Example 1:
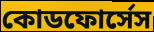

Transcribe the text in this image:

কোডফোর্সেস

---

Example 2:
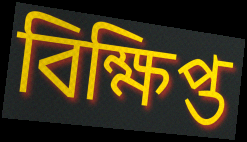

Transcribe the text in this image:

বিক্ষিপ্ত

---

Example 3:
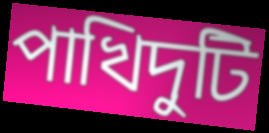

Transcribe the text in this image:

পাখিদুটি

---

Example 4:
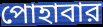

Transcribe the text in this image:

পোহাবার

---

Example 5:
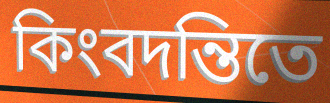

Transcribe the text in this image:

কিংবদন্তিতে